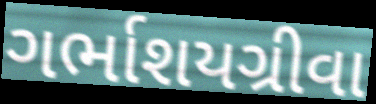
ગર્ભાશયગ્રીવા